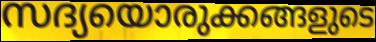
സദ്യയൊരുക്കങ്ങളുടെ